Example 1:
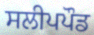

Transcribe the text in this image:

ਸਲੀਪਪੌਡ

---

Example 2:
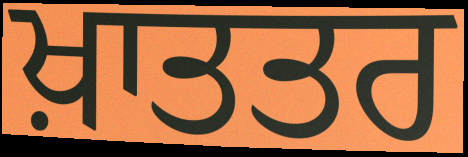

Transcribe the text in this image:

ਖ਼ਾਤਤਰ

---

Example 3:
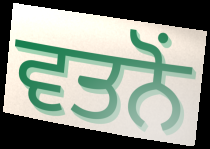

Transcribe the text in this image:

ਵਤਨੋਂ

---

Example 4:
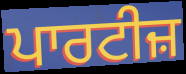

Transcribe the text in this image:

ਪਾਰਟੀਜ਼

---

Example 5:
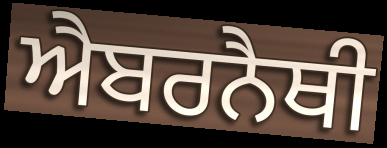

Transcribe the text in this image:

ਐਬਰਨੈਥੀ